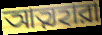
আত্মহারা